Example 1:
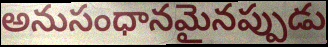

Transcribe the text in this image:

అనుసంధానమైనప్పుడు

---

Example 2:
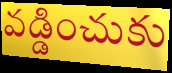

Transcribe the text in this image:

వడ్డించుకు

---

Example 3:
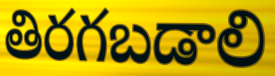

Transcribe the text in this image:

తిరగబడాలి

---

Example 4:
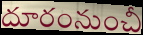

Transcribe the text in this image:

దూరంనుంచీ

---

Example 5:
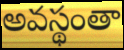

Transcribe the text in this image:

అవస్థంతా